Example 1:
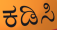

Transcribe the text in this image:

ಕಡಿಸಿ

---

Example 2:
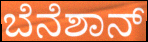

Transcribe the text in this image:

ಬೆನೆಶಾನ್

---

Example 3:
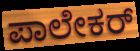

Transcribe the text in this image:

ಪಾಲೇಕರ್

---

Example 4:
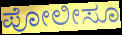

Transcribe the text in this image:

ಪೋಲೀಸೂ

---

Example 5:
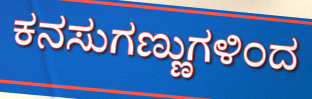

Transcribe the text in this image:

ಕನಸುಗಣ್ಣುಗಳಿಂದ